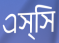
এস্‌সি